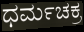
ಧರ್ಮಚಕ್ರ